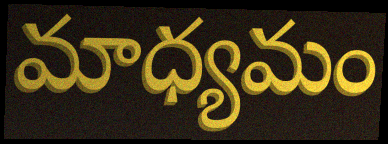
మాధ్యమం